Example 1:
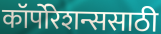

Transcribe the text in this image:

कॉर्पोरेशन्ससाठी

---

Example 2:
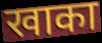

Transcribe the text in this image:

खाका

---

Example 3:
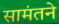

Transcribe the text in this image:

सामंतने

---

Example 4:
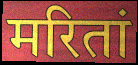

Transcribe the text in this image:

मरितां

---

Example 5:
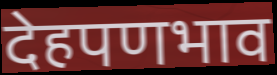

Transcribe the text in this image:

देहपणभाव